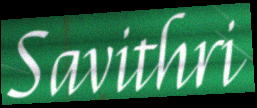
Savithri